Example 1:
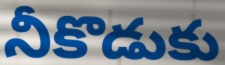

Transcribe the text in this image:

నీకొడుకు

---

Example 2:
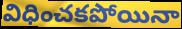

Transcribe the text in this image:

విధించకపోయినా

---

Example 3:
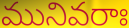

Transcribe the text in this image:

మునివరాః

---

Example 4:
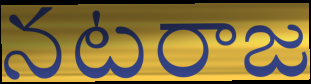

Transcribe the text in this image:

నటరాజ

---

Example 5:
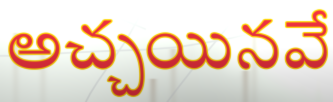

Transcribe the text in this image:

అచ్చయినవే